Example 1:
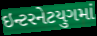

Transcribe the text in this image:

ઇન્ટરનેટયુગમાં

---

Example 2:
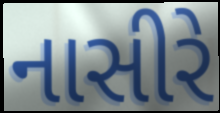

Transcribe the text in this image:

નાસીરે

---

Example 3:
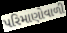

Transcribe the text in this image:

પરિમાણોવાળી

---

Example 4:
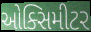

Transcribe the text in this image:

ઓક્સિમીટર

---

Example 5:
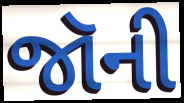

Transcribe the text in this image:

જૉની